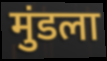
मुंडला